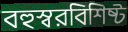
বহুস্বরবিশিষ্ট